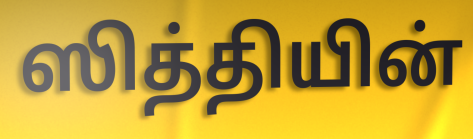
ஸித்தியின்